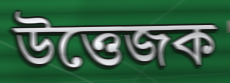
উত্তেজক